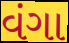
વંગા